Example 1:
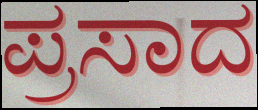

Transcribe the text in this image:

ಪ್ರಸಾದ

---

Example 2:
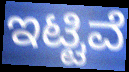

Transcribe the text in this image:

ಇಟ್ಟಿವೆ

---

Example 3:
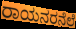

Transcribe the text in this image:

ರಾಯನರನೆಲೆ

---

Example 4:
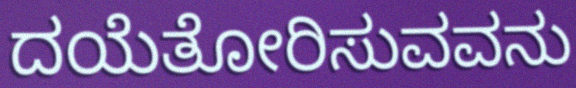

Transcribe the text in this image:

ದಯೆತೋರಿಸುವವನು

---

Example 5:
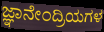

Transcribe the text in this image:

ಜ್ಞಾನೇಂದ್ರಿಯಗಳ